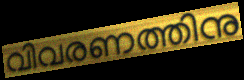
വിവരണത്തിനു